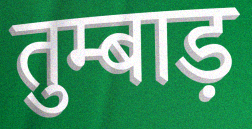
तुम्बाड़